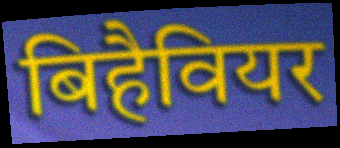
बिहैवियर